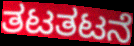
ತಟತಟನೆ